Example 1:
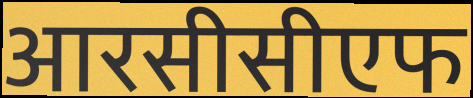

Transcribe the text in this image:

आरसीसीएफ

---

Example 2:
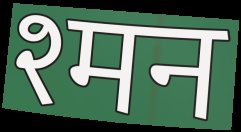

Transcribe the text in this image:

श्मन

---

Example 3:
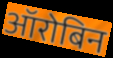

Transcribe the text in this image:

ऑरोबिन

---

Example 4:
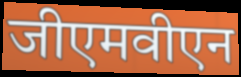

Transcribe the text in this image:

जीएमवीएन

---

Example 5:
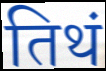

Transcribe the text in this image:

तिथं